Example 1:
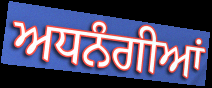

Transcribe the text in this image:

ਅਧਨੰਗੀਆਂ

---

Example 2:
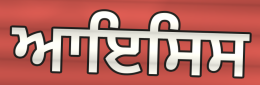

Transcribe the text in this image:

ਆਇਸਿਸ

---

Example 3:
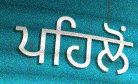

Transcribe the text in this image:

ਪਹਿਲੋਂ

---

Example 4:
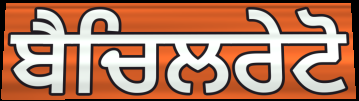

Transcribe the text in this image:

ਬੈਚਿਲਰੇਟੋ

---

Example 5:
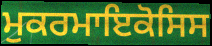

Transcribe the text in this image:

ਮੁਕਰਮਾਇਕੋਸਿਸ